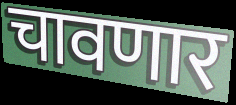
चावणार